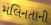
મલિનતાની